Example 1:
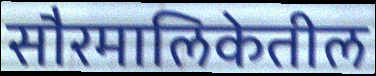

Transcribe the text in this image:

सौरमालिकेतील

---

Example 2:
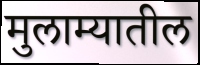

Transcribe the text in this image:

मुलाम्यातील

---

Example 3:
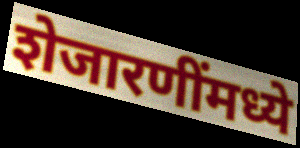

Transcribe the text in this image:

शेजारणींमध्ये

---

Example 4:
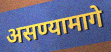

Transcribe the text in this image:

असण्यामागे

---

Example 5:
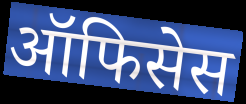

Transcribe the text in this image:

ऑफिसेस